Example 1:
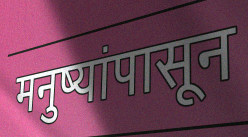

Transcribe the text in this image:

मनुष्यांपासून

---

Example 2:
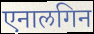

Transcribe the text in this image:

एनालगिन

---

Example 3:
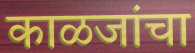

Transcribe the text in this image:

काळजांचा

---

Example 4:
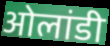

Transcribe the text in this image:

ओलांडी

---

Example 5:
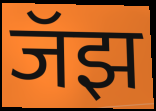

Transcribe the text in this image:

जॅझ